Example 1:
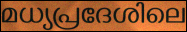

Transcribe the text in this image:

മധ്യപ്രദേശിലെ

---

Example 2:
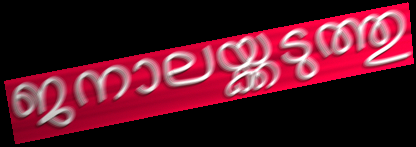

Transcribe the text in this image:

ജനാലയ്ക്കടുത്തു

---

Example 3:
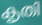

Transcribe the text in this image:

കൃതി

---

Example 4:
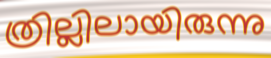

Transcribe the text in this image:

ത്രില്ലിലായിരുന്നു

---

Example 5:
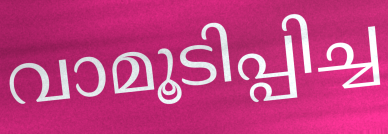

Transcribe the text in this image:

വാമൂടിപ്പിച്ച